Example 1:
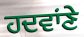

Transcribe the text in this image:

ਹਦਵਾਂਣੇ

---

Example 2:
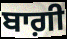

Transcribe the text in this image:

ਬਾਗ਼ੀ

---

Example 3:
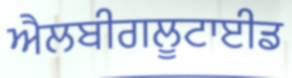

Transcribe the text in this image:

ਐਲਬੀਗਲੂਟਾਈਡ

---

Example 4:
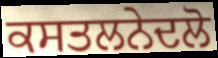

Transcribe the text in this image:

ਕਸਤਲਨੇਦਲੋ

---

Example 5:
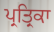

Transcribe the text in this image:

ਪ੍ਰਤ੍ਰਿਕਾ